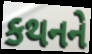
કથનને